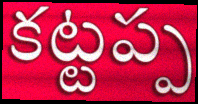
కట్టప్ప